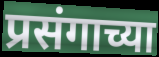
प्रसंगाच्या